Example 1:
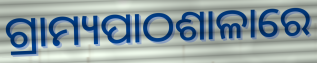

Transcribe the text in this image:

ଗ୍ରାମ୍ୟପାଠଶାଳାରେ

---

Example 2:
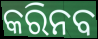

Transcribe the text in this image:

କରିନବ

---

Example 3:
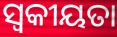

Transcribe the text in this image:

ସ୍ଵକୀୟତା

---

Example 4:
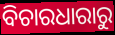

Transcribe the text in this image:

ବିଚାରଧାରାରୁ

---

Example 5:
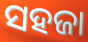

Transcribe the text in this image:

ସହଜା